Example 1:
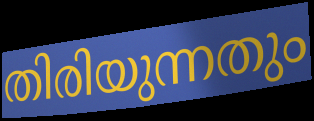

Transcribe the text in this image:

തിരിയുന്നതും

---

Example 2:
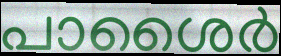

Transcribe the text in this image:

പാശൈർ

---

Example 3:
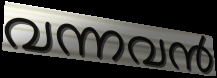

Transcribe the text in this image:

വന്നവൻ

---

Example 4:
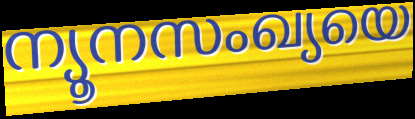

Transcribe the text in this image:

ന്യൂനസംഖ്യയെ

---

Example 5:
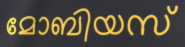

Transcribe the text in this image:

മോബിയസ്